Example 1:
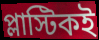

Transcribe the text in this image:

প্লাস্টিকই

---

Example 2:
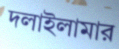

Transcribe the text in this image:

দলাইলামার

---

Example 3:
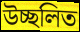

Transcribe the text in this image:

উচ্ছলিত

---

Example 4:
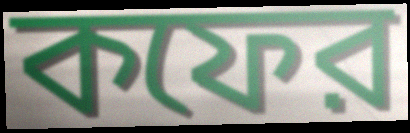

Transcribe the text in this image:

কফের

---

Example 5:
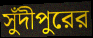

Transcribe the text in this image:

সুঁদীপুরের